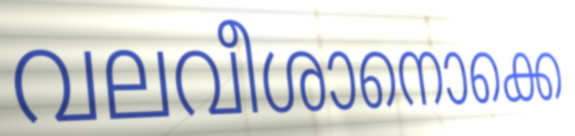
വലവീശാനൊക്കെ